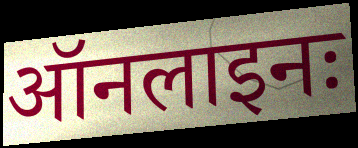
ऑनलाइनः